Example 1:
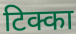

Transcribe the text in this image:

टिक्का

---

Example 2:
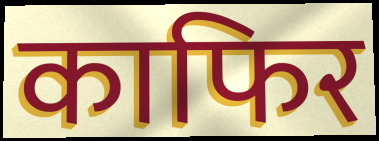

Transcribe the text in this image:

काफिर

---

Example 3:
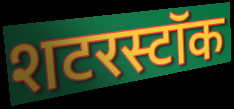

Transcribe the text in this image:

शटरस्टॉक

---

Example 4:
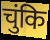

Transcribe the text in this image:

चुंकि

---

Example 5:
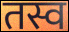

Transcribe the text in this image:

तस्व